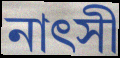
নাৎসী